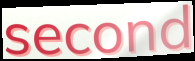
second